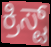
ಕ್ರಿಸ್ಟ್